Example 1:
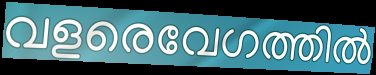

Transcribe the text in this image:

വളരെവേഗത്തിൽ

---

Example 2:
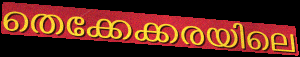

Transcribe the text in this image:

തെക്കേക്കരയിലെ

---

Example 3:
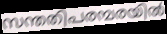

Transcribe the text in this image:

സന്തതിപരമ്പരയിൽ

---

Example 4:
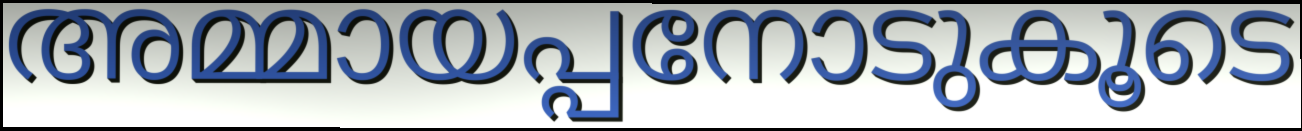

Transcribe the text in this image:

അമ്മായപ്പനോടുകൂടെ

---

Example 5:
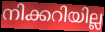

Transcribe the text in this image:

നിക്കറിയില്ല